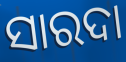
ସାରଦା